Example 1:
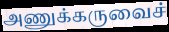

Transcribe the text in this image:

அணுக்கருவைச்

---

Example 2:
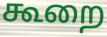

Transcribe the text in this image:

கூறை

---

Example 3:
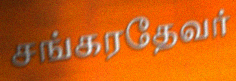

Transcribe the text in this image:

சங்கரதேவர்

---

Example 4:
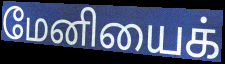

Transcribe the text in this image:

மேனியைக்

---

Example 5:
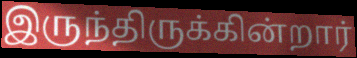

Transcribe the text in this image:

இருந்திருக்கின்றார்